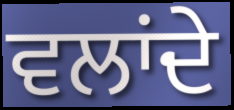
ਵਲਾਂਦੇ